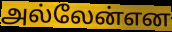
அல்லேன்என